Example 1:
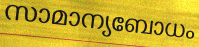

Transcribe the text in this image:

സാമാന്യബോധം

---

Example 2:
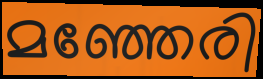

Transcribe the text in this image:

മഞ്ഞേരി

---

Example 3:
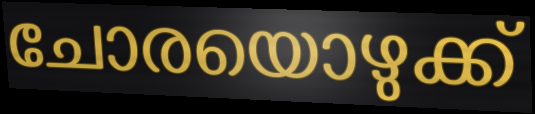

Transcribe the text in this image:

ചോരയൊഴുക്ക്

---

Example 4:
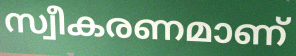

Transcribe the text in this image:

സ്വീകരണമാണ്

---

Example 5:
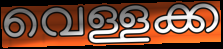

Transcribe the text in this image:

വെള്ളക്ക